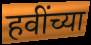
हवींच्या